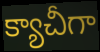
క్యాచీగా